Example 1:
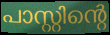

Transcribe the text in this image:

പാസ്റ്റിന്റെ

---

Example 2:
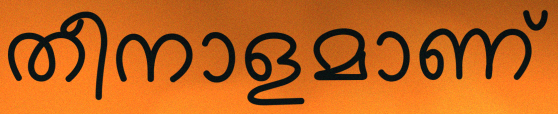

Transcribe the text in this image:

തീനാളമാണ്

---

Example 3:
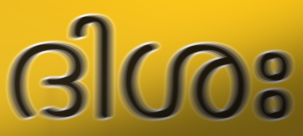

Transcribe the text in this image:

ദിശഃ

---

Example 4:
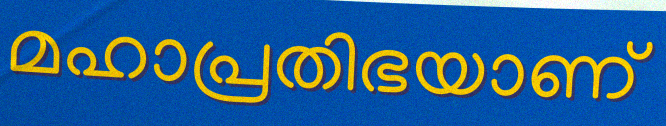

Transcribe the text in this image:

മഹാപ്രതിഭയാണ്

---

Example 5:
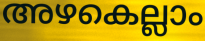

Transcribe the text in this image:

അഴകെല്ലാം